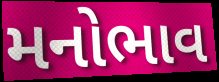
મનોભાવ